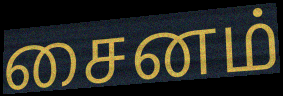
சைனம்